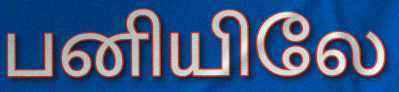
பனியிலே